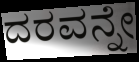
ದರವನ್ನೇ